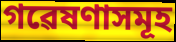
গৱেষণাসমূহ